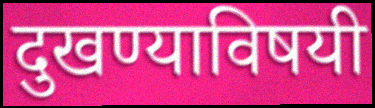
दुखण्याविषयी